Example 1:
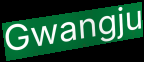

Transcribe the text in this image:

Gwangju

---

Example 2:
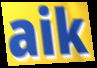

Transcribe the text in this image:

aik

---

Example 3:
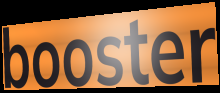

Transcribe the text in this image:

booster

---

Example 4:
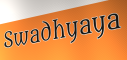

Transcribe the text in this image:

Swadhyaya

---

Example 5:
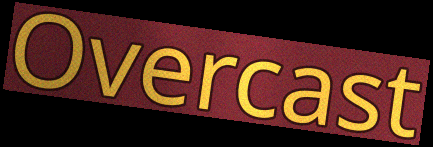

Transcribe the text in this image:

Overcast